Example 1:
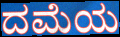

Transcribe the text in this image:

ದಮೆಯ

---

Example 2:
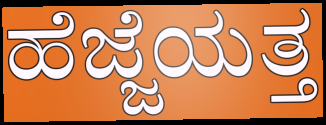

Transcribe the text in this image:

ಹೆಜ್ಜೆಯತ್ತ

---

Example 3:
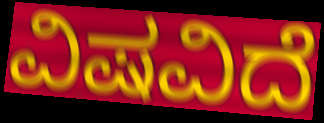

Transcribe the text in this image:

ವಿಷವಿದೆ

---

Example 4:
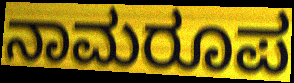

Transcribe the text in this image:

ನಾಮರೂಪ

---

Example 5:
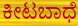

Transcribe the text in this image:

ಕೀಟಬಾಧೆ